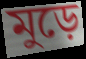
মুড়ে